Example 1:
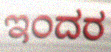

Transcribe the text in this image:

ಇಂದರ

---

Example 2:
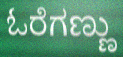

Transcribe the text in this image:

ಓರೆಗಣ್ಣು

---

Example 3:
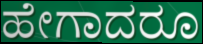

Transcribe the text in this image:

ಹೇಗಾದರೂ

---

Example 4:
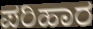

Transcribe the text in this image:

ಪರಿಹಾರ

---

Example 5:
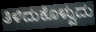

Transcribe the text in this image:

ತಿಳಿದುಕೊಳ್ವುದು